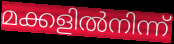
മക്കളിൽനിന്ന്